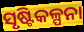
ସୃଷ୍ଟିକଳ୍ପନା